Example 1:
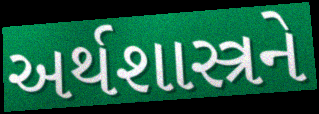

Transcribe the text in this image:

અર્થશાસ્ત્રને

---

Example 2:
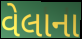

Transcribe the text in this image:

વેલાના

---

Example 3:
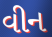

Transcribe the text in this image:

વીન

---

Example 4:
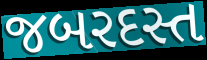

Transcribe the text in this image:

જબરદસ્ત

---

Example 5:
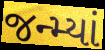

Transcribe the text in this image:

જન્મ્યાં